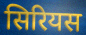
सिरियस